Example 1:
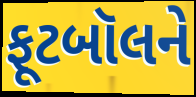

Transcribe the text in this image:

ફૂટબૉલને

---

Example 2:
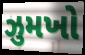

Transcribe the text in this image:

ઝુમખો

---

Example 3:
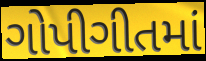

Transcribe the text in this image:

ગોપીગીતમાં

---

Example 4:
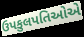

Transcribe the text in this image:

ઉપકુલપતિઓએ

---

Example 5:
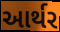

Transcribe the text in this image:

આર્થર